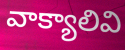
వాక్యాలివి